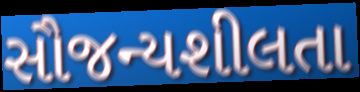
સૌજન્યશીલતા